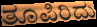
ತೂಪಿರಿದು